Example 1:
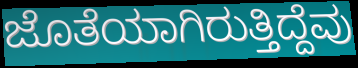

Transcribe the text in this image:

ಜೊತೆಯಾಗಿರುತ್ತಿದ್ದೆವು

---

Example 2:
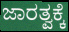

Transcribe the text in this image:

ಜಾರತ್ವಕ್ಕೆ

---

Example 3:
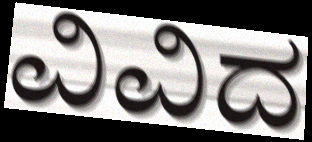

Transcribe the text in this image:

ವಿವಿದ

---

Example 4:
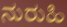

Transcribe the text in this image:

ನುರುಹಿ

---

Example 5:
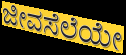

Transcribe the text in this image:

ಜೀವಸೆಲೆಯೇ